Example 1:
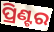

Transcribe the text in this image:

ପ୍ରିଣ୍ଟର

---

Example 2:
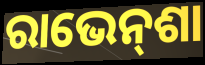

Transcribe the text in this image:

ରାଭେନ୍‌ଶା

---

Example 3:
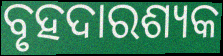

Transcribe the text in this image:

ବୃହଦାରଶ୍ୟକ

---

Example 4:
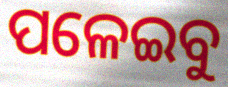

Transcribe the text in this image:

ପଳେଇବୁ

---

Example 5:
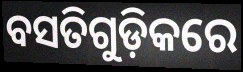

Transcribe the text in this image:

ବସତିଗୁଡ଼ିକରେ